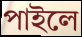
পাইলে